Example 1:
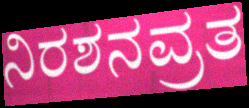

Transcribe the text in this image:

ನಿರಶನವ್ರತ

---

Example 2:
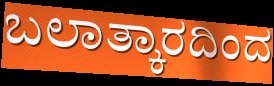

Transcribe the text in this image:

ಬಲಾತ್ಕಾರದಿಂದ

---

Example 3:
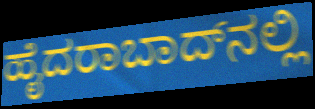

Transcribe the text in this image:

ಹೈದರಾಬಾದ್‌ನಲ್ಲಿ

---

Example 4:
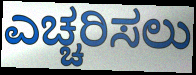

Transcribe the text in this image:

ಎಚ್ಚರಿಸಲು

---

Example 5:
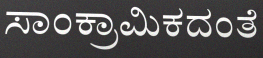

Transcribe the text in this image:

ಸಾಂಕ್ರಾಮಿಕದಂತೆ